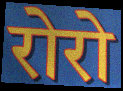
रोरो